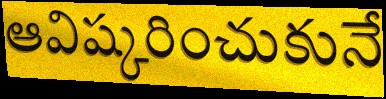
ఆవిష్కరించుకునే